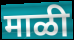
माळी